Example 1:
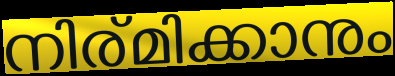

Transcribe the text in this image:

നിര്മിക്കാനും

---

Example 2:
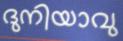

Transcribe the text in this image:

ദുനിയാവു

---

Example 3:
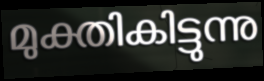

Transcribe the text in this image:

മുക്തികിട്ടുന്നു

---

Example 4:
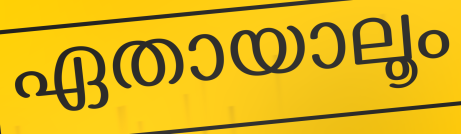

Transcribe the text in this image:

ഏതായാലൂം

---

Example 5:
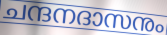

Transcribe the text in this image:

ചന്ദനദാസനും